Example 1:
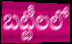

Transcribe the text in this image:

బట్టీలలో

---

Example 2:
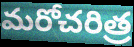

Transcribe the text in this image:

మరోచరిత్ర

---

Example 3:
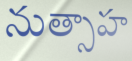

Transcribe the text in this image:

నుత్సాహ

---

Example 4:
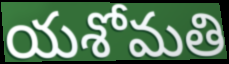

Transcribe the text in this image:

యశోమతి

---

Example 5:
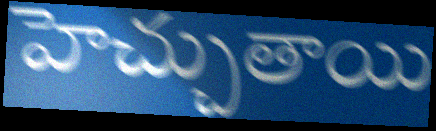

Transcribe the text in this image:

హెచ్చుతాయి